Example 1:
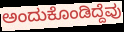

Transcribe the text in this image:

ಅಂದುಕೊಂಡಿದ್ದೆವು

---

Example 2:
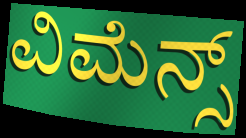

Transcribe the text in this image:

ವಿಮೆನ್ಸ್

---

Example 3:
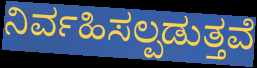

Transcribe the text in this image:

ನಿರ್ವಹಿಸಲ್ಪಡುತ್ತವೆ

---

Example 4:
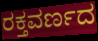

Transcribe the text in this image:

ರಕ್ತವರ್ಣದ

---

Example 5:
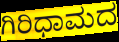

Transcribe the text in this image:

ಗಿರಿಧಾಮದ